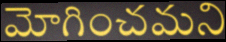
మోగించమని